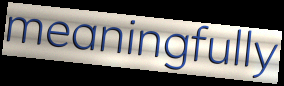
meaningfully